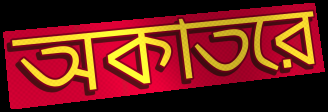
অকাতরে